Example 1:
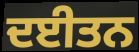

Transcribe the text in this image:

ਦਈਤਨ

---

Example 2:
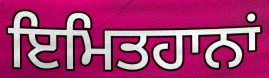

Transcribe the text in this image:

ਇਮਿਤਹਾਨਾਂ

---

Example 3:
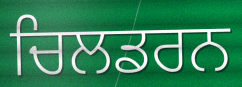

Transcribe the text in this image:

ਚਿਲਡਰਨ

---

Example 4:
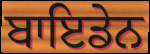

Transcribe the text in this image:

ਬਾਇਡੇਨ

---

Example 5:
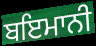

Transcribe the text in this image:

ਬਇਮਾਨੀ